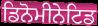
ਡਿਨੋਮੀਨੇਟਿਡ